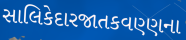
સાલિકેદારજાતકવણ્ણના